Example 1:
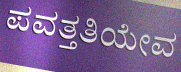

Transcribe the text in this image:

ಪವತ್ತತಿಯೇವ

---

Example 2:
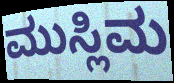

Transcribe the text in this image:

ಮುಸ್ಲಿಮ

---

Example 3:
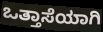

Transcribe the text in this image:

ಒತ್ತಾಸೆಯಾಗಿ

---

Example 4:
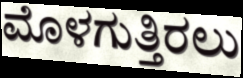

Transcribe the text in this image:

ಮೊಳಗುತ್ತಿರಲು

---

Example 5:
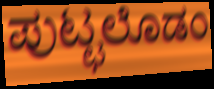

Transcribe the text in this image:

ಪುಟ್ಟಲೊಡಂ